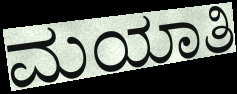
ಮಯಾತಿ